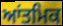
ਆਂਤਮਿਕ